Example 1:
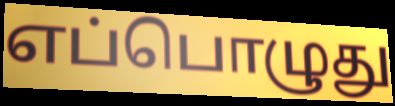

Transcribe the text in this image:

எப்பொழுது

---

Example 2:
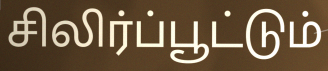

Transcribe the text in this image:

சிலிர்ப்பூட்டும்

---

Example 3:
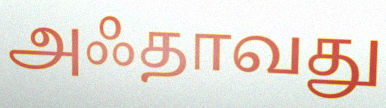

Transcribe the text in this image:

அஃதாவது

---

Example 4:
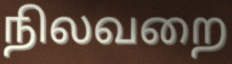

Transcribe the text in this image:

நிலவறை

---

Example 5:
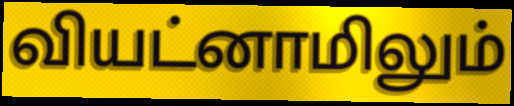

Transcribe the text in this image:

வியட்னாமிலும்